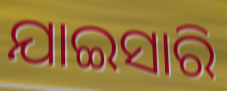
ଯାଇସାରି